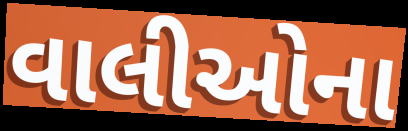
વાલીઓના